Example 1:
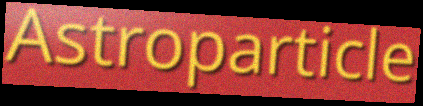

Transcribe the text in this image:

Astroparticle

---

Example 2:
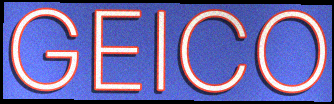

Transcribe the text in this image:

GEICO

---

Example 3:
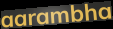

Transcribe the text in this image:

aarambha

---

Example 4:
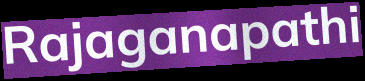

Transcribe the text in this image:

Rajaganapathi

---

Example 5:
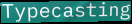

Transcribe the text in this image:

Typecasting